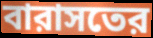
বারাসতের